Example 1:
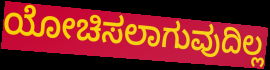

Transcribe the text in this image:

ಯೋಚಿಸಲಾಗುವುದಿಲ್ಲ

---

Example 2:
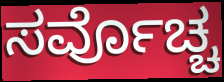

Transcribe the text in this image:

ಸರ್ವೊಚ್ಚ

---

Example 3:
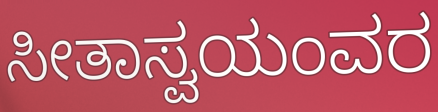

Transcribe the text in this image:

ಸೀತಾಸ್ವಯಂವರ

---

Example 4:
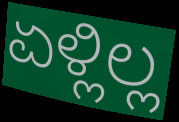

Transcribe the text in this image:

ಏಳ್ಲಿಲ್ಲ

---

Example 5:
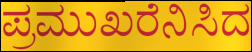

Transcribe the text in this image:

ಪ್ರಮುಖರೆನಿಸಿದ